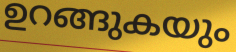
ഉറങ്ങുകയും